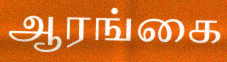
ஆரங்கை